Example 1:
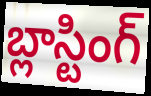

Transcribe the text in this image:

బ్లాస్టింగ్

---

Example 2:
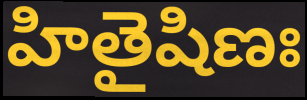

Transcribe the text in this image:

హితైషిణః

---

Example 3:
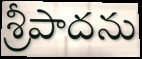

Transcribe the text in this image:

శ్రీపాదను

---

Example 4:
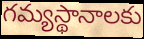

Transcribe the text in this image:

గమ్యస్థానాలకు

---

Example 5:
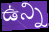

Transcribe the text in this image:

ఉన్ని